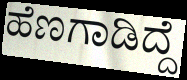
ಹೆಣಗಾಡಿದ್ದೆ